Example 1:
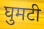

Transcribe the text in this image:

घुमटी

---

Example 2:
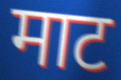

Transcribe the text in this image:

माट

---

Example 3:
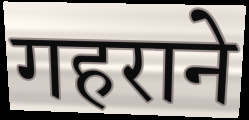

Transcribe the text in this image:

गहराने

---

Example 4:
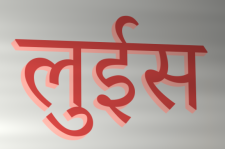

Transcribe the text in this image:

लुईस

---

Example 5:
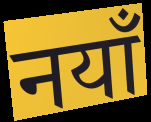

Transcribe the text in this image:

नयाँ